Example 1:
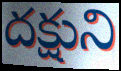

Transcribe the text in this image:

దక్షుని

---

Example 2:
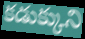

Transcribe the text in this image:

కడుక్కుని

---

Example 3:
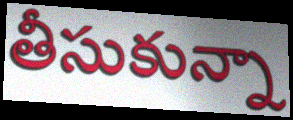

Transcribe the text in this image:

తీసుకున్నా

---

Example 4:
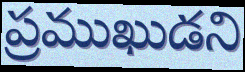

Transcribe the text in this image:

ప్రముఖుడని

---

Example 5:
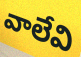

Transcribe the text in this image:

వాలేవి